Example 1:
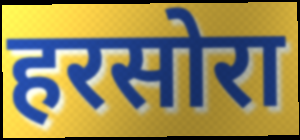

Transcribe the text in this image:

हरसोरा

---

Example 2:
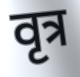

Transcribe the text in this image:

वृत्र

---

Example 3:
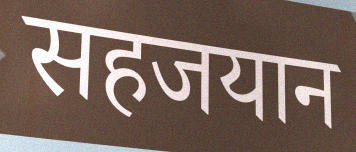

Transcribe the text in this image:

सहजयान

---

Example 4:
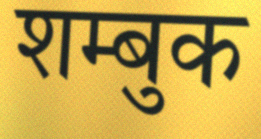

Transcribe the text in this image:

शम्बुक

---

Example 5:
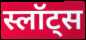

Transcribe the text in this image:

स्लॉट्स